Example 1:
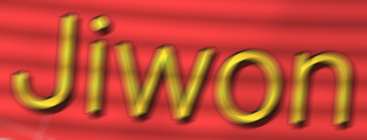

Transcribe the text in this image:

Jiwon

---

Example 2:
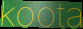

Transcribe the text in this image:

koota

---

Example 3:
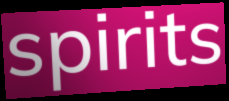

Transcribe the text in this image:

spirits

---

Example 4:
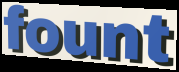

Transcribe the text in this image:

fount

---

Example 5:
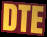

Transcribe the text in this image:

DTE